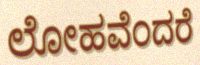
ಲೋಹವೆಂದರೆ